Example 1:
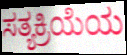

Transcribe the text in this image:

ಸತ್ಯಕ್ರಿಯೆಯ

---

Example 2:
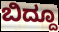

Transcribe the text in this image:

ಬಿದ್ದೂ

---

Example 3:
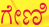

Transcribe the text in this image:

ಗೇಣಿ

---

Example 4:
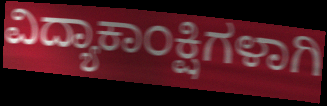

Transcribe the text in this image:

ವಿದ್ಯಾಕಾಂಕ್ಷಿಗಳಾಗಿ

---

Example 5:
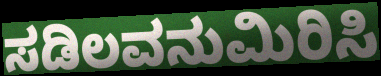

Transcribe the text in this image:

ಸಡಿಲವನುಮಿರಿಸಿ